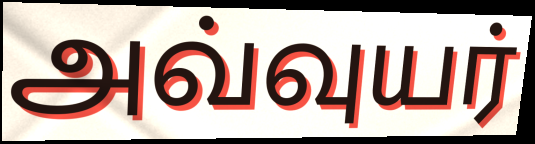
அவ்வுயர்